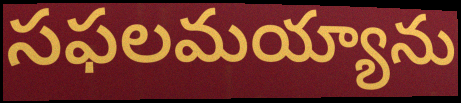
సఫలమయ్యాను